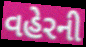
વહેરની